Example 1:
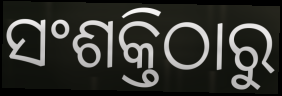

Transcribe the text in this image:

ସଂଶକ୍ତିଠାରୁ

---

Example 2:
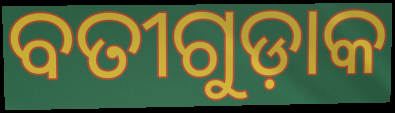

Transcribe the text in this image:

ବତୀଗୁଡ଼ାକ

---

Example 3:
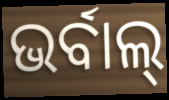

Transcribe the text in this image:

ଭର୍ବାଲ୍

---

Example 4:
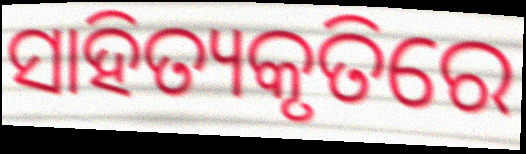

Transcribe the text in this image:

ସାହିତ୍ୟକୃତିରେ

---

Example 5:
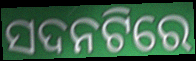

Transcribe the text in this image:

ସଦନଟିରେ